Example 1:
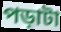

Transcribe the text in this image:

পড়াটা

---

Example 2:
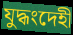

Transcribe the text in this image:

যুদ্ধংদেহী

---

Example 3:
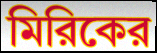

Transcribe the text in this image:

মিরিকের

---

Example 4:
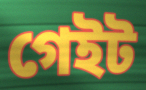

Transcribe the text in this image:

গেইট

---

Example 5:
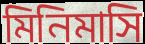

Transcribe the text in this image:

মিনিমাসি